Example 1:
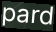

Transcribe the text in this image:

pard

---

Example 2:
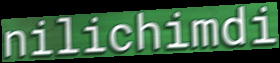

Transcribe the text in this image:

nilichimdi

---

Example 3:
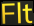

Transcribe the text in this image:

Flt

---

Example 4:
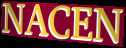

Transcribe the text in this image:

NACEN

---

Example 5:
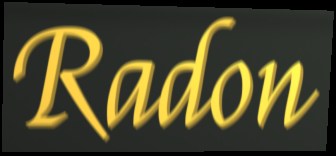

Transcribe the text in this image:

Radon